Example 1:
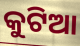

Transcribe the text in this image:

କୁଟିଆ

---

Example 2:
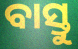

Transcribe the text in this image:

ବାସ୍ତୁ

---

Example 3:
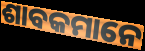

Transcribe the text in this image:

ଶାବକମାନେ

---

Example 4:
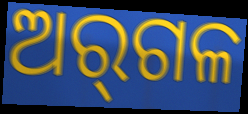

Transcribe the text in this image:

ଅର୍‌ଗଳ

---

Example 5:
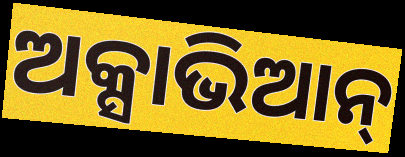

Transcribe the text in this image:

ଅକ୍ସାଭିଆନ୍